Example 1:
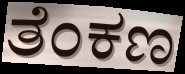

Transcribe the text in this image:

ತೆಂಕಣ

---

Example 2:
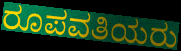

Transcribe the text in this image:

ರೂಪವತಿಯರು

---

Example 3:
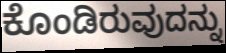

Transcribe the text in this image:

ಕೊಂಡಿರುವುದನ್ನು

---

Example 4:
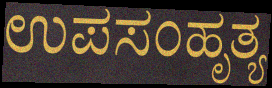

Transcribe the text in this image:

ಉಪಸಂಹೃತ್ಯ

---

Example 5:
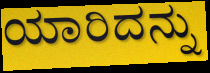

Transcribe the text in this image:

ಯಾರಿದನ್ನು